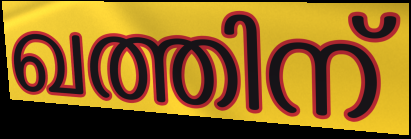
ഖത്തിന്